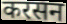
करसन